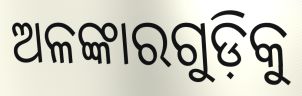
ଅଳଙ୍କାରଗୁଡ଼ିକୁ